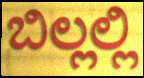
ಬಿಲ್ಲಲ್ಲಿ